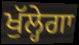
ਖੁੱਲ੍ਹੇਗਾ